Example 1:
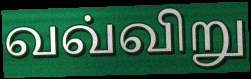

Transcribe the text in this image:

வவ்விறு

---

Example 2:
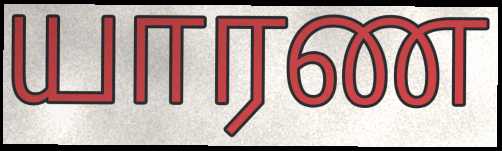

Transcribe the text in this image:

யாரண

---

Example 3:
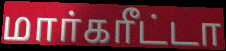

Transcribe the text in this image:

மார்கரீட்டா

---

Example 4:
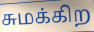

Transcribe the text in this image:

சுமக்கிற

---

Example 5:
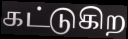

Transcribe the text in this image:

கட்டுகிற